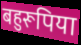
बहुरूपिया